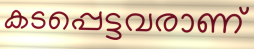
കടപ്പെട്ടവരാണ്